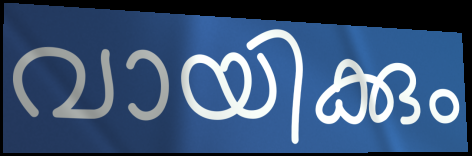
വായിക്കും